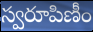
స్వరూపిణీం